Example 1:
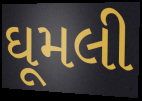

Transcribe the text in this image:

ઘૂમલી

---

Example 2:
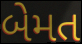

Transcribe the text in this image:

બેમત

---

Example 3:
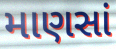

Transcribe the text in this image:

માણસાં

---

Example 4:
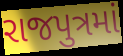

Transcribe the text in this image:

રાજપુત્રમાં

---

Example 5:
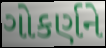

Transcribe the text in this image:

ગોકર્ણને